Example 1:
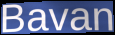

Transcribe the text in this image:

Bavan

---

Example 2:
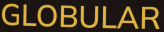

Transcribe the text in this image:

GLOBULAR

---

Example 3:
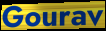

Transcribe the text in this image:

Gourav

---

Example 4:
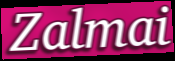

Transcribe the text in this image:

Zalmai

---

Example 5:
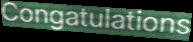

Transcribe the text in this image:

Congatulations